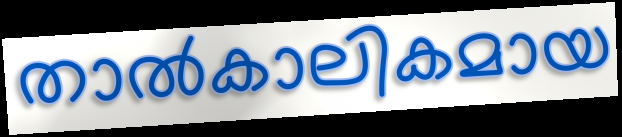
താൽകാലികമായ